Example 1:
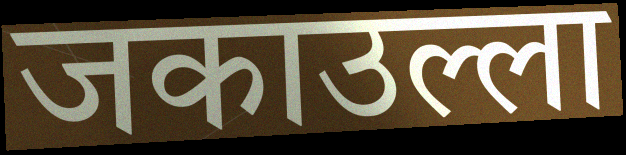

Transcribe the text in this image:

जकाउल्ला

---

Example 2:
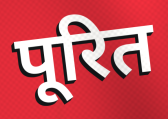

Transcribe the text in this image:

पूरित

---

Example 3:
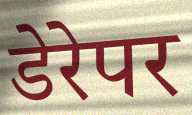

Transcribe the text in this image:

डेरेपर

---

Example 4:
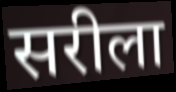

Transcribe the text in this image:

सरीला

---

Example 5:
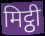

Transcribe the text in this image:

मिट्ठी